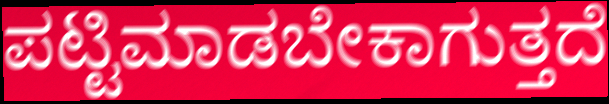
ಪಟ್ಟಿಮಾಡಬೇಕಾಗುತ್ತದೆ